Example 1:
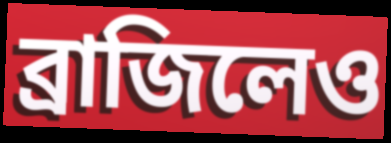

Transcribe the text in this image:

ব্রাজিলেও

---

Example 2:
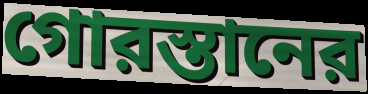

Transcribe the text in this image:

গোরস্তানের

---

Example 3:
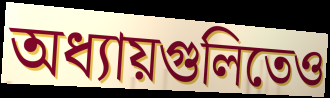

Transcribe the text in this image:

অধ্যায়গুলিতেও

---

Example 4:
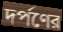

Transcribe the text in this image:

দর্পণের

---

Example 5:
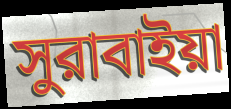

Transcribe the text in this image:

সুরাবাইয়া